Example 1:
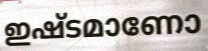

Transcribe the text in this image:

ഇഷ്ടമാണോ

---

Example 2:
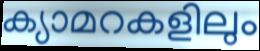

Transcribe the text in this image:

ക്യാമറകളിലും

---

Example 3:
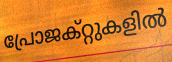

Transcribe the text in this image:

പ്രോജക്റ്റുകളിൽ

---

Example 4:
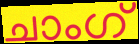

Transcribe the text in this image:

ചാംഗ്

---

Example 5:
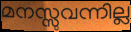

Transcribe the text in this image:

മനസ്സുവന്നില്ല